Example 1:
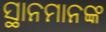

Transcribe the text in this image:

ସ୍ଥାନମାନଙ୍କ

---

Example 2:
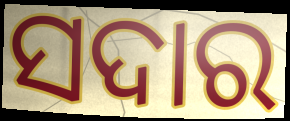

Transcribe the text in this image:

ସଦାର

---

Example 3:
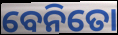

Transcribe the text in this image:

ବେନିତୋ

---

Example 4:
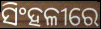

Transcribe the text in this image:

ସିଂହଳୀରେ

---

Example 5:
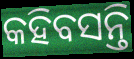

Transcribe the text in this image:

କହିବସନ୍ତି